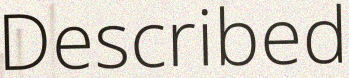
Described